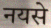
नयसे